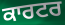
ਕਾਰਟਰ